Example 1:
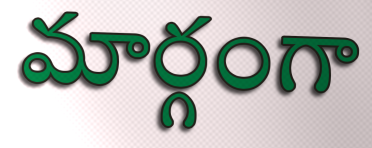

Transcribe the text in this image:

మార్గంగా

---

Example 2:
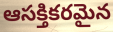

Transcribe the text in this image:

ఆసక్తికరమైన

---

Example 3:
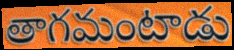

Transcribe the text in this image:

తాగమంటాడు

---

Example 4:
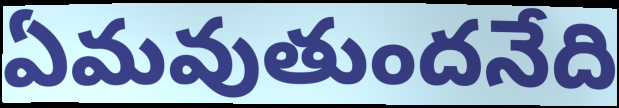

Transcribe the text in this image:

ఏమవుతుందనేది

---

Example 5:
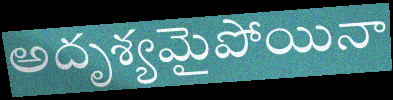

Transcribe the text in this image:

అదృశ్యమైపోయినా